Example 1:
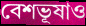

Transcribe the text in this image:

বেশভূষাও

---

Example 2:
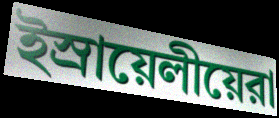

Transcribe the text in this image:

ইস্রায়েলীয়েরা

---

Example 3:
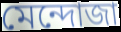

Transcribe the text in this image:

মেন্দোজা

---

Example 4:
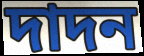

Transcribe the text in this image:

দাদন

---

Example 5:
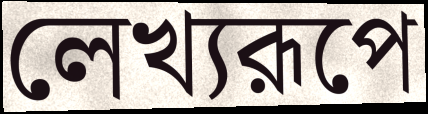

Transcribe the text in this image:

লেখ্যরূপে